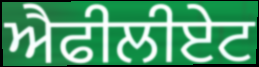
ਐਫੀਲੀਏਟ